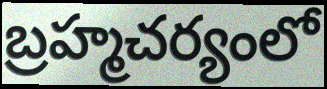
బ్రహ్మచర్యంలో